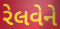
રેલવેને